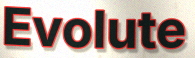
Evolute